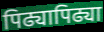
पिढ्यापिढ्या